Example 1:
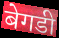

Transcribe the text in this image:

बेगडी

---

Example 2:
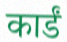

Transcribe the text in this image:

कार्डं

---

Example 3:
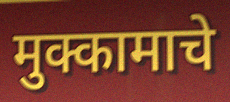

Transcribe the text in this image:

मुक्कामाचे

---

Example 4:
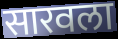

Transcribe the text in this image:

सारवला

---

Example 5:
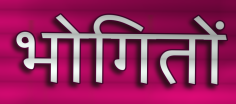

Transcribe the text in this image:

भोगितों